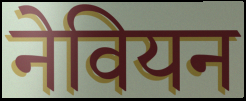
नेवियन